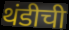
थंडीची